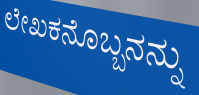
ಲೇಖಕನೊಬ್ಬನನ್ನು